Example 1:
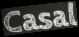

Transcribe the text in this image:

Casal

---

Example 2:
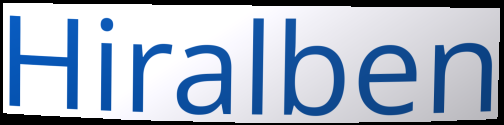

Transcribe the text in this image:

Hiralben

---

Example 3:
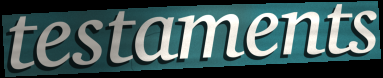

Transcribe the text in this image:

testaments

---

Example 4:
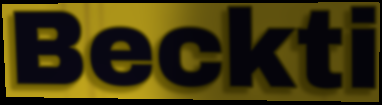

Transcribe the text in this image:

Beckti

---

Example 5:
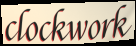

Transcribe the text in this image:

clockwork